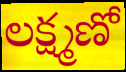
లక్ష్మణో